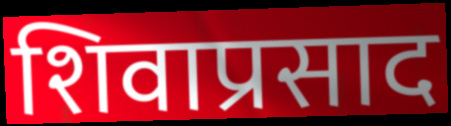
शिवाप्रसाद